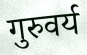
गुरुवर्य